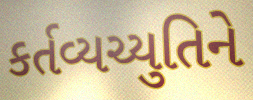
કર્તવ્યચ્યુતિને